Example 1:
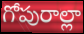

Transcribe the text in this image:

గోపురాల్లా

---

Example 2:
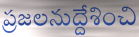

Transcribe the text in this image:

ప్రజలనుద్దేశించి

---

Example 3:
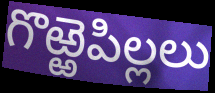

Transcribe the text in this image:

గొఱ్ఱెపిల్లలు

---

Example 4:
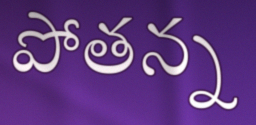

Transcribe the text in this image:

పోతన్న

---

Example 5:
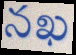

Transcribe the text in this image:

నఖ